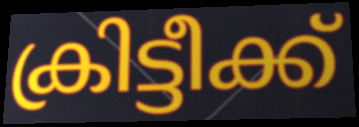
ക്രിട്ടീക്ക്